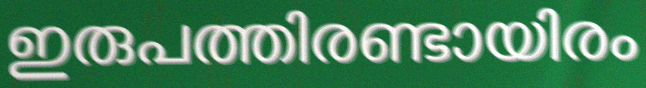
ഇരുപത്തിരണ്ടായിരം